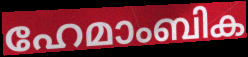
ഹേമാംബിക